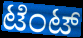
ಟೆಂಟ್